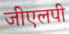
जीएलपी